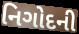
નિગોદની